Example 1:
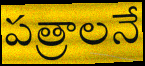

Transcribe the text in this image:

పత్రాలనే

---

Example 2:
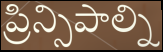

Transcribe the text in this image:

ప్రిన్సిపాల్ని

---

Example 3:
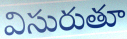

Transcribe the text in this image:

విసురుతూ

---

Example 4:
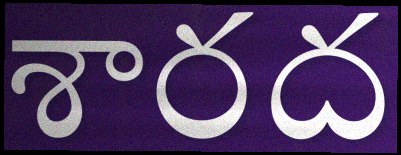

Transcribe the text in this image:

శారద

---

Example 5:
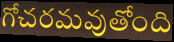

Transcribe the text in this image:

గోచరమవుతోంది